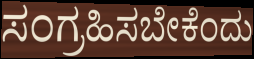
ಸಂಗ್ರಹಿಸಬೇಕೆಂದು